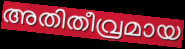
അതിതീവ്രമായ